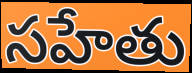
సహేతు